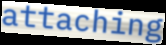
attaching